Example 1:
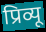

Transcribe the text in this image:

प्रिव्यू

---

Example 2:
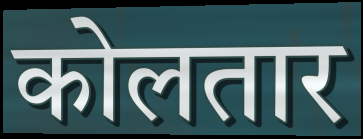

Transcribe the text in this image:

कोलतार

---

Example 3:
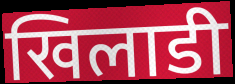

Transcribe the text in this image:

खिलाडी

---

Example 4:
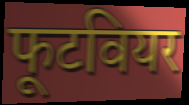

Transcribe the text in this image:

फूटवियर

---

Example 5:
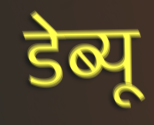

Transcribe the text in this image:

डेब्यू